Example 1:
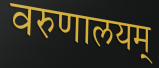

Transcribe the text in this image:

वरुणालयम्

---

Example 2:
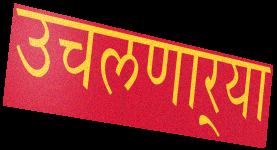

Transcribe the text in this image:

उचलणार्या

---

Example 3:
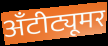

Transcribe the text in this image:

अँटीट्यूमर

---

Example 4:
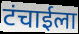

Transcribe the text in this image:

टंचाईला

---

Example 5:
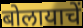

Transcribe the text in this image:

बोलायाचें